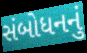
સંબોધનનું